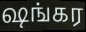
ஷங்கர